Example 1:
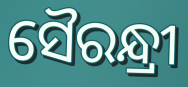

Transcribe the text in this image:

ସୈରନ୍ଧ୍ରୀ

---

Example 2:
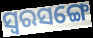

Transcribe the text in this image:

ସ୍ୱରସଙ୍ଗେ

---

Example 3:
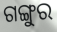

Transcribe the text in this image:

ଗଙ୍ଗୁର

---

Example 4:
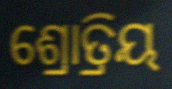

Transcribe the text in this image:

ଶ୍ରୋତ୍ରିୟ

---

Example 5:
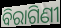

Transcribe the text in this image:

ବିରାଗିଣୀ